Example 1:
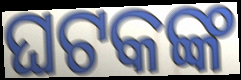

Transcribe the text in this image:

ଘଟକଙ୍କ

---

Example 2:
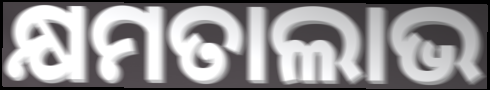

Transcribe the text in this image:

କ୍ଷମତାଲାଭ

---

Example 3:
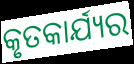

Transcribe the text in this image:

କୃତକାର୍ଯ୍ୟର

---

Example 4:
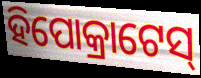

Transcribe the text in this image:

ହିପୋକ୍ରାଟେସ୍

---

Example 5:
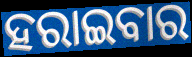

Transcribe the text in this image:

ହରାଇବାର